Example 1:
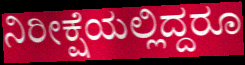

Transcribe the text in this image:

ನಿರೀಕ್ಷೆಯಲ್ಲಿದ್ದರೂ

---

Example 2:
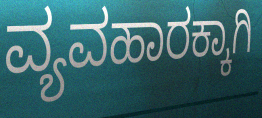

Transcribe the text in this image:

ವ್ಯವಹಾರಕ್ಕಾಗಿ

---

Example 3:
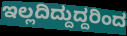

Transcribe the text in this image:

ಇಲ್ಲದಿದ್ದುದ್ದರಿಂದ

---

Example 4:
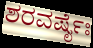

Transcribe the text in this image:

ಶರವರ್ಷೈಃ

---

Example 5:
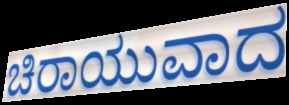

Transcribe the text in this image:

ಚಿರಾಯುವಾದ